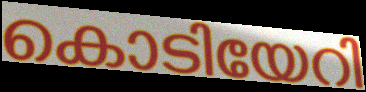
കൊടിയേറി